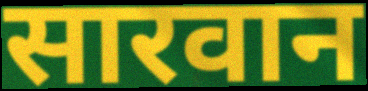
सारवान